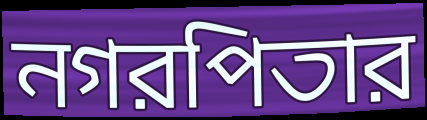
নগরপিতার